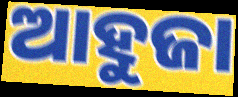
ଆହୁଜା